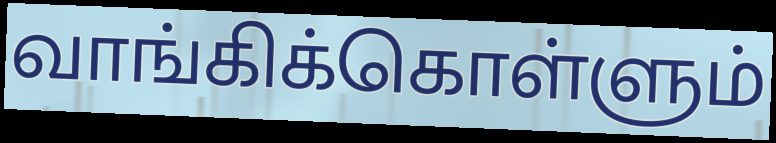
வாங்கிக்கொள்ளும்